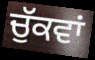
ਚੁੱਕਵਾਂ